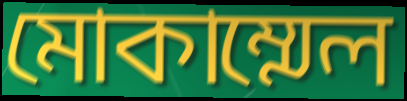
মোকাম্মেল